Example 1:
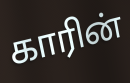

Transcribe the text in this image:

காரின்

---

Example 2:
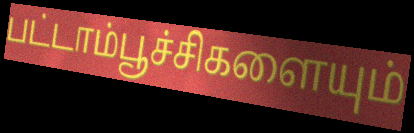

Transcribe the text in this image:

பட்டாம்பூச்சிகளையும்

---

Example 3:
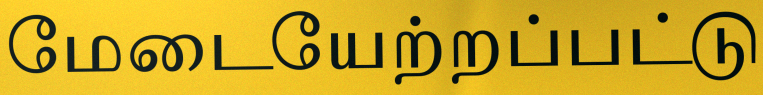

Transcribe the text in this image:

மேடையேற்றப்பட்டு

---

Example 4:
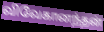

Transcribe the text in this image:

விவேகானந்தன்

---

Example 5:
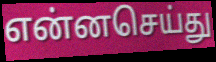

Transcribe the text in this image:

என்னசெய்து